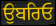
ਉਬਰਿਓ